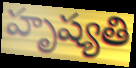
హృష్యతి